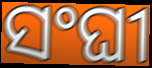
ସଂଘୀ